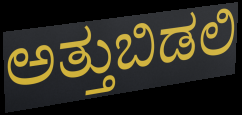
ಅತ್ತುಬಿಡಲಿ